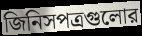
জিনিসপত্রগুলোর